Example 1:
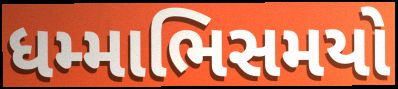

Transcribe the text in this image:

ધમ્માભિસમયો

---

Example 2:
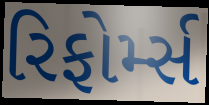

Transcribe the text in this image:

રિફોર્મ્સ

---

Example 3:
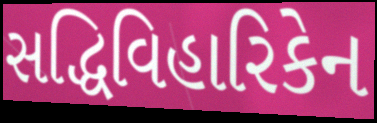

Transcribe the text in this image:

સદ્ધિવિહારિકેન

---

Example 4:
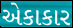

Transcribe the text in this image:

એકાકાર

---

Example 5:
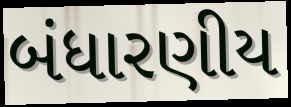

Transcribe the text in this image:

બંધારણીય